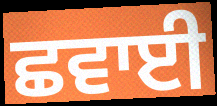
ਛਵਾਈ